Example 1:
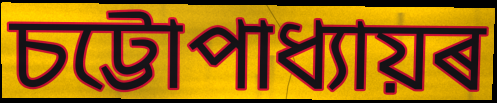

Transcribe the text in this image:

চট্টোপাধ্যায়ৰ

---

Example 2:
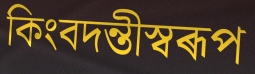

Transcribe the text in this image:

কিংবদন্তীস্বৰূপ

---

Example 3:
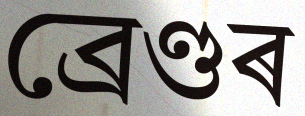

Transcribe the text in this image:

ব্ৰেণ্ডৰ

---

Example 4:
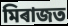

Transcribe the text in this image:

মিৰাজত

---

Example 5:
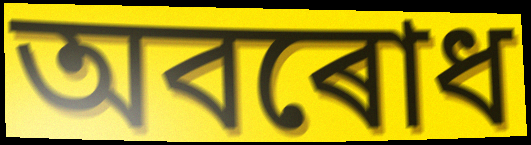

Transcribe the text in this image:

অবৰোধ